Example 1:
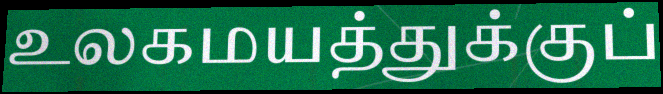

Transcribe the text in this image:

உலகமயத்துக்குப்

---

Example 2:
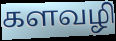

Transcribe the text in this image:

களவழி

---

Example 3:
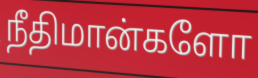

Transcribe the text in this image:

நீதிமான்களோ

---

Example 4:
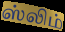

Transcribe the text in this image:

ஸ்லிம்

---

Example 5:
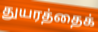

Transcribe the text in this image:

துயரத்தைக்